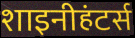
शाइनीहंटर्स